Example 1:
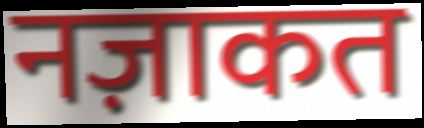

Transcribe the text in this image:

नज़ाकत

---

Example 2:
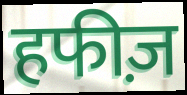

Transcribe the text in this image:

हफीज़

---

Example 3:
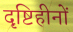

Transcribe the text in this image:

दृष्टिहीनों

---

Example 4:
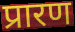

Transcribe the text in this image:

प्रारण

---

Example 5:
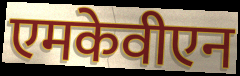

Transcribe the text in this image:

एमकेवीएन